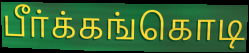
பீர்க்கங்கொடி